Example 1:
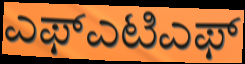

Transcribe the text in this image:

ಎಫ್ಎಟಿಎಫ್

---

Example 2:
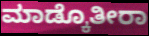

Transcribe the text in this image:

ಮಾಡ್ಕೊತೀರಾ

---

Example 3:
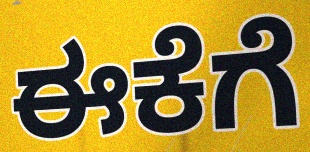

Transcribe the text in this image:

ಈಕೆಗೆ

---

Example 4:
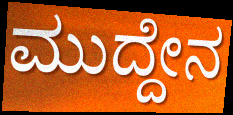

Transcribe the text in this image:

ಮುದ್ದೇನ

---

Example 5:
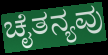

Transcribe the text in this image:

ಚೈತನ್ಯವು